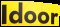
Idoor